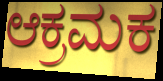
ಆಕ್ರಮಕ